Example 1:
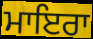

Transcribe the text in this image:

ਮਾਇਰਾ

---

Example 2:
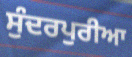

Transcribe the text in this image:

ਸੁੰਦਰਪੁਰੀਆ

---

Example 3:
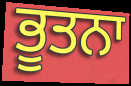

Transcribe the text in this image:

ਭੂਤਨਾ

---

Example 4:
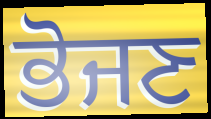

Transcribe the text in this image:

ਭੋਜਣ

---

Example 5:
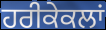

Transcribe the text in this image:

ਹਰੀਕੇਕਲਾਂ